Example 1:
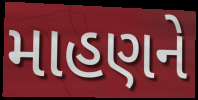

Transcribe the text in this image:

માહણને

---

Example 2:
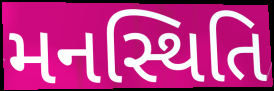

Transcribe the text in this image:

મનસ્થિતિ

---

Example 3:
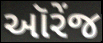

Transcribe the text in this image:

ઑરેંજ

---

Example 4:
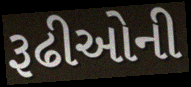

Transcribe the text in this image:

રૂઢીઓની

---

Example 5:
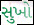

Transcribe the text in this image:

સુખો